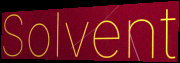
Solvent